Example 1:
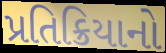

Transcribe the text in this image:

પ્રતિક્રિયાનો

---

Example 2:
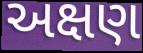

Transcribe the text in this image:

અક્ષણ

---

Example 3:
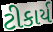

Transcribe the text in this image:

ટીકાર્ય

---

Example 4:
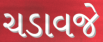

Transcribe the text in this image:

ચડાવજે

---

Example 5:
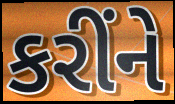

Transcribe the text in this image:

કરીંને